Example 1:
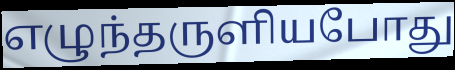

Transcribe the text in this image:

எழுந்தருளியபோது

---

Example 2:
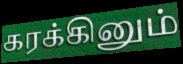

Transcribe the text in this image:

கரக்கினும்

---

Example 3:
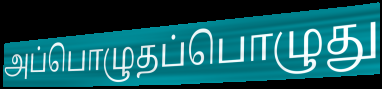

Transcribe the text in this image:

அப்பொழுதப்பொழுது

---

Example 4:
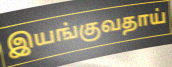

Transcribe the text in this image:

இயங்குவதாய்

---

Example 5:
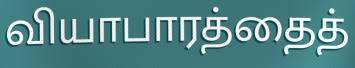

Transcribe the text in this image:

வியாபாரத்தைத்